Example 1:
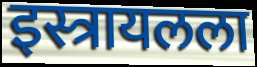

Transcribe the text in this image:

इस्त्रायलला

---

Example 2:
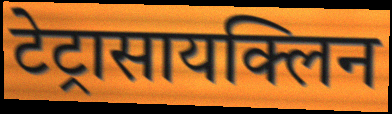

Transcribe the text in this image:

टेट्रासायक्लिन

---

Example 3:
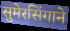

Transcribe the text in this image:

सुमेरसिंगाने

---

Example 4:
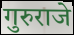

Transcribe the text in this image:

गुरुराजे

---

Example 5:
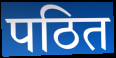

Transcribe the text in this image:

पठित